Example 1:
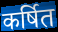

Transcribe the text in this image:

कर्षित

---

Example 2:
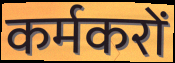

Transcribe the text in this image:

कर्मकरों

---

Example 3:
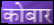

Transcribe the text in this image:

कोबार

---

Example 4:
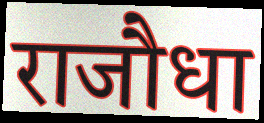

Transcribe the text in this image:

राजौधा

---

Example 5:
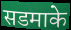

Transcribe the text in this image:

सडमाके